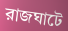
রাজঘাটে